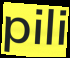
pili